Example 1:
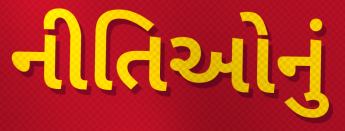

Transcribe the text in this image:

નીતિઓનું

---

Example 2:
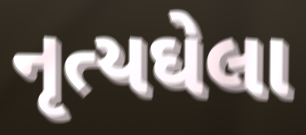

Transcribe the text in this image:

નૃત્યઘેલા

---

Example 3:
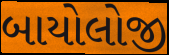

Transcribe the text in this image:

બાયોલોજી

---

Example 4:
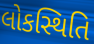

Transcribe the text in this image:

લોકસ્થિતિ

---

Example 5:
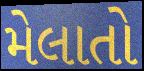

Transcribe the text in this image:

મેલાતો